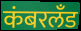
कंबरलँड